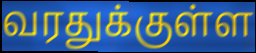
வரதுக்குள்ள